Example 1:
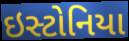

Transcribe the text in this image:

ઇસ્ટોનિયા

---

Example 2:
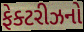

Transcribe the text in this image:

ફેક્ટરીઝનો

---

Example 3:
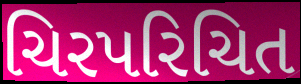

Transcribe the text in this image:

ચિરપરિચિત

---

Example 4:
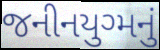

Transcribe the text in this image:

જનીનયુગ્મનું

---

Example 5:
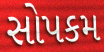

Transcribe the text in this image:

સોપકમ